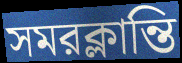
সমরক্লান্তি